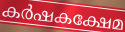
കർഷകക്ഷേമ